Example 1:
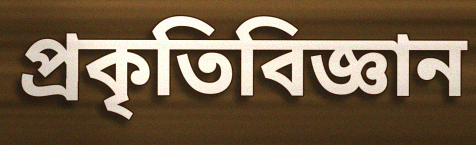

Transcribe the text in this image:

প্রকৃতিবিজ্ঞান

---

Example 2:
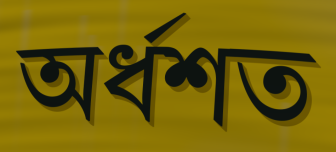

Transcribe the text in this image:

অর্ধশত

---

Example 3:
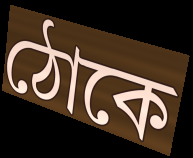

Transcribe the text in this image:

ঠোকে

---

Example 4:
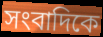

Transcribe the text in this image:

সংবাদিকে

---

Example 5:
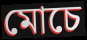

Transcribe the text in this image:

মোচে